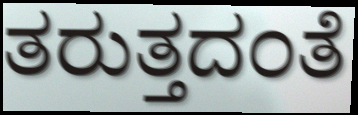
ತರುತ್ತದಂತೆ